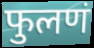
फुलणं